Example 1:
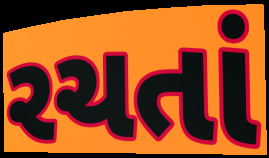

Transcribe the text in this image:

રચતાં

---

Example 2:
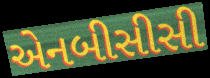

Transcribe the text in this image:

એનબીસીસી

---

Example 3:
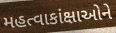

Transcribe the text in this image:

મહત્વાકાંક્ષાઓને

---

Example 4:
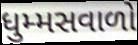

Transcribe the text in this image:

ધુમ્મસવાળો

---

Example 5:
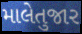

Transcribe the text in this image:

માલેતુજાર